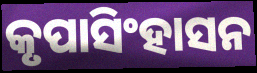
କୃପାସିଂହାସନ